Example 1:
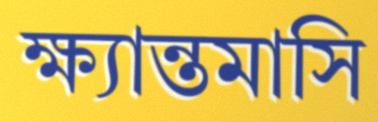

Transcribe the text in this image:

ক্ষ্যান্তমাসি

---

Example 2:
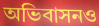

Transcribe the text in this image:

অভিবাসনও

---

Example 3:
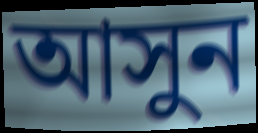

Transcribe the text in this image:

আসুন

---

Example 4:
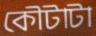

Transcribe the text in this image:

কৌটাটা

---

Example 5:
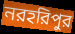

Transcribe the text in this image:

নরহরিপুর